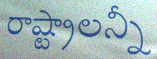
రాష్ట్రాలన్నీ